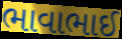
ભાવાભાઈ